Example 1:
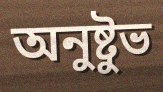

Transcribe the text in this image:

অনুষ্টুভ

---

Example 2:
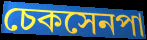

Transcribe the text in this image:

চেকসেনপা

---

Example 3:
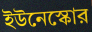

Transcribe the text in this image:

ইউনেস্কোর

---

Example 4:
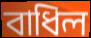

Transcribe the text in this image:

বাধিল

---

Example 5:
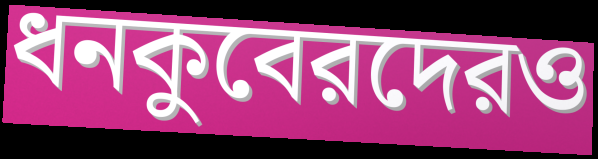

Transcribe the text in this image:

ধনকুবেরদেরও